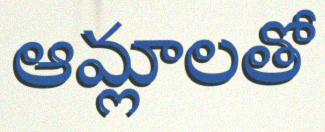
ఆమ్లాలతో